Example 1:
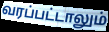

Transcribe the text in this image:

வரப்பட்டாலும்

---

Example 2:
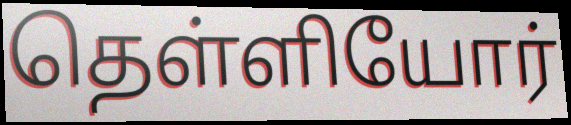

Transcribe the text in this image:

தெள்ளியோர்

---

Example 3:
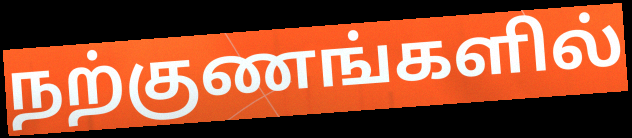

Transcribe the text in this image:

நற்குணங்களில்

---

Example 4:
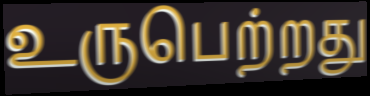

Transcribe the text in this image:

உருபெற்றது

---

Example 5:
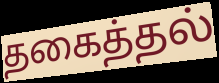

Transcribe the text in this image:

தகைத்தல்